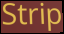
Strip